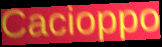
Cacioppo